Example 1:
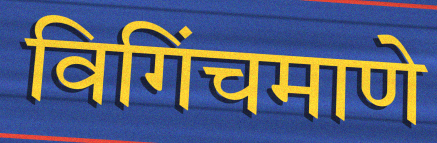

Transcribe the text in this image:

विगिंचमाणे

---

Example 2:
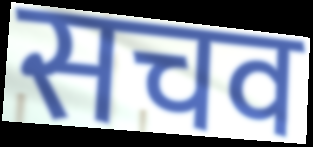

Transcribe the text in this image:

सचव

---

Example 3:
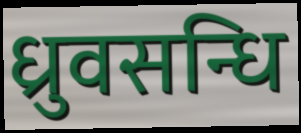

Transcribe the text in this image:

ध्रुवसन्धि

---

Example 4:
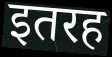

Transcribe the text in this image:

इतरह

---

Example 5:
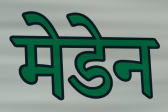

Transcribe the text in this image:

मेडेन